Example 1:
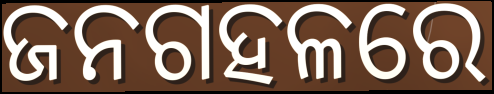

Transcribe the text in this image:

ଜନଗହଳରେ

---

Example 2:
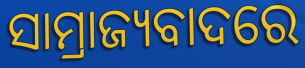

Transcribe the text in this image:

ସାମ୍ରାଜ୍ୟବାଦରେ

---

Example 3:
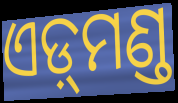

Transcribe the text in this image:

ଏଡ଼୍‌ମଣ୍ଡ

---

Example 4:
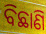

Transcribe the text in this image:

ବିଛାଣି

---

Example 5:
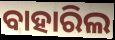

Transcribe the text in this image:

ବାହାରିଲ